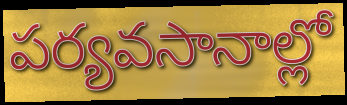
పర్యవసానాల్లో